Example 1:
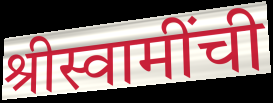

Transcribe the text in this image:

श्रीस्वामींची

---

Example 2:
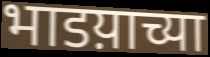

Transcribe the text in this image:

भाडय़ाच्या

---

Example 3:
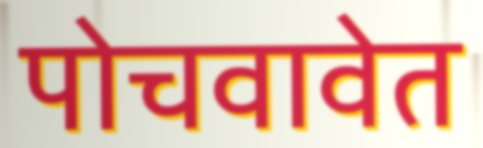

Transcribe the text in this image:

पोचवावेत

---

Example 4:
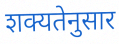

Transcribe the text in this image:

शक्यतेनुसार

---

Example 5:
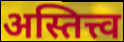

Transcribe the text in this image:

अस्तित्त्व